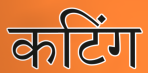
कटिंग